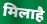
मिलाहै